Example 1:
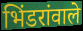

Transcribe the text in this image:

भिंडरांवाले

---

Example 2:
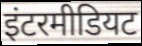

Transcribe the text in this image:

इंटरमीडियट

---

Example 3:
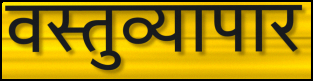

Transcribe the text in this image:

वस्तुव्यापार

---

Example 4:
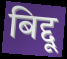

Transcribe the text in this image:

बिद्दू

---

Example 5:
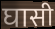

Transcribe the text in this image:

घासी